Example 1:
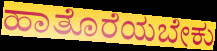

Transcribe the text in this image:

ಹಾತೊರೆಯಬೇಕು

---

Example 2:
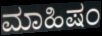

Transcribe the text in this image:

ಮಾಹಿಷಂ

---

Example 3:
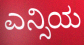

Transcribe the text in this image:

ಎನ್ಸಿಯ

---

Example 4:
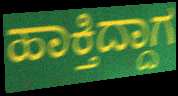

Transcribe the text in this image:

ಹಾಕ್ತಿದ್ದಾಗ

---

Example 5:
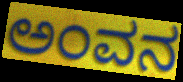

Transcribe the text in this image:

ಅಂವನ